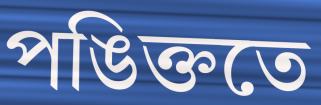
পঙিক্ততে